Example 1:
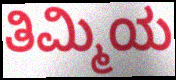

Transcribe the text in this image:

ತಿಮ್ಮಿಯ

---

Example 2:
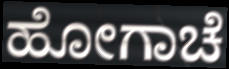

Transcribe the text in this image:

ಹೋಗಾಚೆ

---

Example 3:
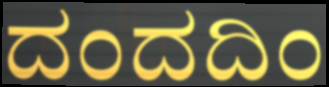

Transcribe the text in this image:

ದಂದದಿಂ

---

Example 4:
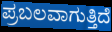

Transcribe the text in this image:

ಪ್ರಬಲವಾಗುತ್ತಿದೆ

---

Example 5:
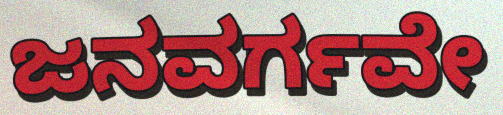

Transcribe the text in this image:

ಜನವರ್ಗವೇ